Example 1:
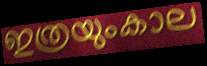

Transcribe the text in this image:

ഇത്രയുംകാല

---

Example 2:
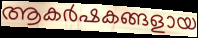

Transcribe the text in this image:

ആകർഷകങ്ങളായ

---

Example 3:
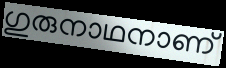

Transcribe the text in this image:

ഗുരുനാഥനാണ്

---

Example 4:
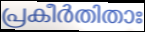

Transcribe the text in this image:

പ്രകീർതിതാഃ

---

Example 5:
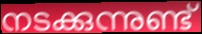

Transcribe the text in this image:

നടക്കുന്നുണ്ട്